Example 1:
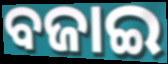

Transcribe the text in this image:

ବଜାଇ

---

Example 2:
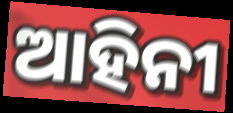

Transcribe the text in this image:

ଆହିନୀ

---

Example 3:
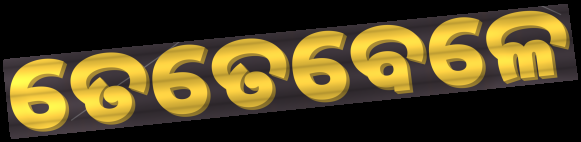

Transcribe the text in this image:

ତେତେବେଳେ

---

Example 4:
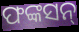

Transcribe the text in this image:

ଫଙ୍କସନ୍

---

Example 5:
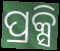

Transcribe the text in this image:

ପ୍ରକ୍ସି